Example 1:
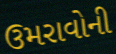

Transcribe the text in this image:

ઉમરાવોની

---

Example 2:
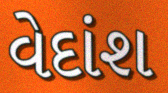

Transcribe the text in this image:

વેદાંશ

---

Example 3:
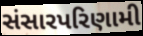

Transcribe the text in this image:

સંસારપરિણામી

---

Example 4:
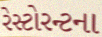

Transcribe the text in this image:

રેસ્ટોરન્ટના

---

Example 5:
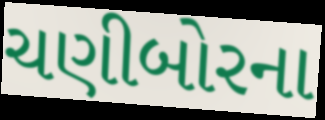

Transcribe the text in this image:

ચણીબોરના